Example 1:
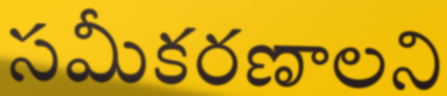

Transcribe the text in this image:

సమీకరణాలని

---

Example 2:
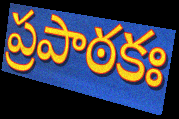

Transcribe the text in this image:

ప్రపాఠకః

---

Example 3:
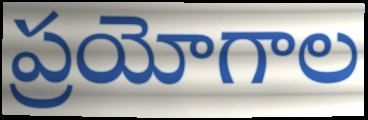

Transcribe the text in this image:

ప్రయోగాల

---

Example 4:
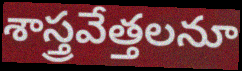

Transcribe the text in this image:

శాస్త్రవేత్తలనూ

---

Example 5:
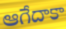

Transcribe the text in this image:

ఆగేదాకా